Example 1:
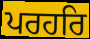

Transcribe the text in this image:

ਪਰਹਰਿ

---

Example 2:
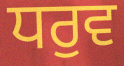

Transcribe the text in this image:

ਧਰੁਵ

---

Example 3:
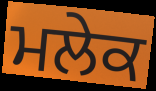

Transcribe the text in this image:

ਮਲੇਕ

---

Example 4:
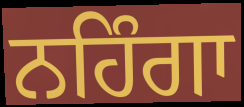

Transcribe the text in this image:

ਨਹਿੰਗਾ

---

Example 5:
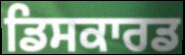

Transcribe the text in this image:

ਡਿਸਕਾਰਡ